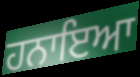
ਹਨਾਇਆ